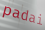
padai